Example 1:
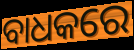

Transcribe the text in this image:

ବାଧକରେ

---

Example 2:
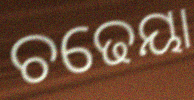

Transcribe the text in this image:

ଚଢେୟା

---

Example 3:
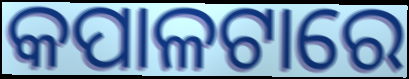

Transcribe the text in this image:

କପାଳଟାରେ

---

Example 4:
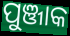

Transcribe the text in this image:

ପୁଞ୍ଜାକ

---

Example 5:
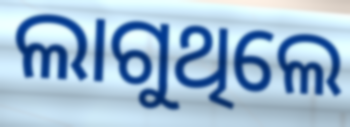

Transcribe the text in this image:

ଲାଗୁଥିଲେ